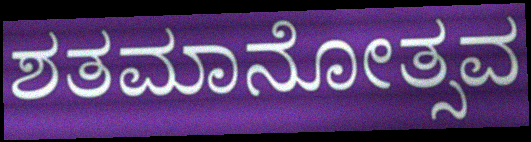
ಶತಮಾನೋತ್ಸವ